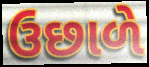
ઉછાળે